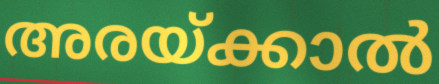
അരയ്ക്കാൽ